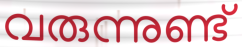
വരുന്നുണ്ട്